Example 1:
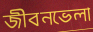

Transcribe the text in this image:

জীবনভেলা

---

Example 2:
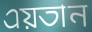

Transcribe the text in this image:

এয়তান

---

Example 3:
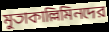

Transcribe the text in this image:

মুতাকাল্লিমিনদের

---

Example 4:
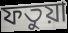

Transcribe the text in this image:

ফতুয়া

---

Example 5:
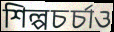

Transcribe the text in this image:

শিল্পচর্চাও